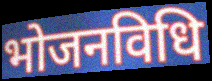
भोजनविधि